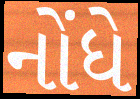
નોંધે